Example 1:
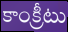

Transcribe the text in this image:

కాంక్రీటు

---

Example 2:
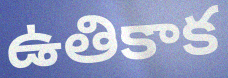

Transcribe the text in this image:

ఉతికాక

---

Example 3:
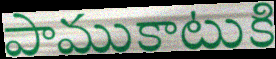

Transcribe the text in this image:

పాముకాటుకి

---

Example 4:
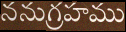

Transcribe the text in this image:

ననుగ్రహము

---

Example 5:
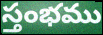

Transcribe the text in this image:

స్తంభము